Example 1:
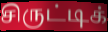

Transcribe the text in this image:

சிருட்டிக்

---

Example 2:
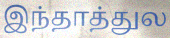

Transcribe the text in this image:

இந்தாத்துல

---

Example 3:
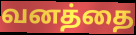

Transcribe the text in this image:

வனத்தை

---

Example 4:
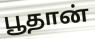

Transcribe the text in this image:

பூதான்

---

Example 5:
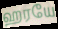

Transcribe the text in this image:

ஹரயே